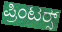
ಪ್ರಿಂಟರ‍್ಸ್